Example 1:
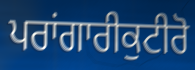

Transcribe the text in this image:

ਪਰਾਂਗਾਰੀਕੁਟੀਰੋ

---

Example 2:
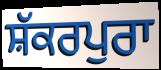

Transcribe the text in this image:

ਸ਼ੱਕਰਪੁਰਾ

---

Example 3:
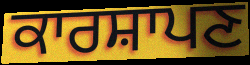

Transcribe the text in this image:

ਕਾਰਸ਼ਾਪਣ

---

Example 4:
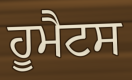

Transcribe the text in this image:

ਹੂਮੈਟਸ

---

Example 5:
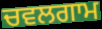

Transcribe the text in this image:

ਚਵਲਗਾਮ